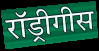
रॉड्रीगीस